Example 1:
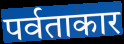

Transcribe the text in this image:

पर्वताकार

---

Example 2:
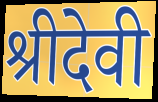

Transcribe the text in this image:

श्रीदेवी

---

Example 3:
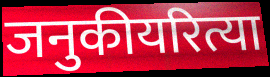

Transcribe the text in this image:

जनुकीयरित्या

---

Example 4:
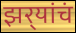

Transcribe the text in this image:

झर्‍यांचं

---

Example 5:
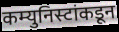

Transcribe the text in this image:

कम्युनिस्टांकडून